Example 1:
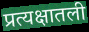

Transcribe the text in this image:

प्रत्यक्षातली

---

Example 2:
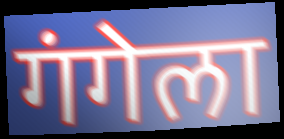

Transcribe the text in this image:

गंगेला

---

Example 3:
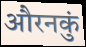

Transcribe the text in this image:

औरनकुं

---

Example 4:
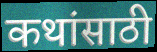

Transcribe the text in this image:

कथांसाठी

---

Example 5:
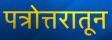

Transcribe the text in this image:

पत्रोत्तरातून